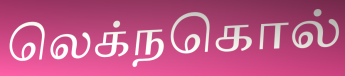
லெக்நகொல்